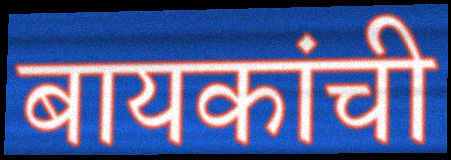
बायकांची